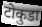
टोकुडा